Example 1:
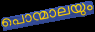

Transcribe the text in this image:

പൊന്മാലയും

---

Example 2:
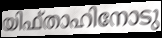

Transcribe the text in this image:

യിഫ്താഹിനോടു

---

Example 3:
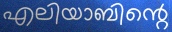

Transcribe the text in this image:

എലിയാബിന്റെ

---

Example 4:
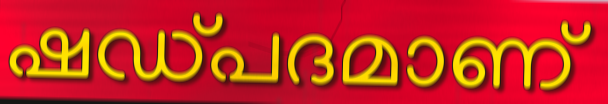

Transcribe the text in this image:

ഷഡ്പദമാണ്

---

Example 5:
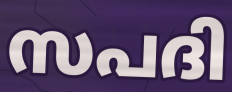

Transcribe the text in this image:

സപദി